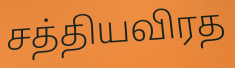
சத்தியவிரத